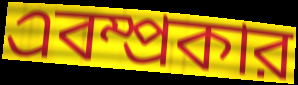
এবম্প্রকার